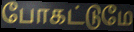
போகட்டுமே